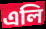
এলি